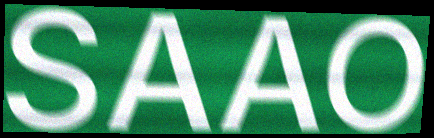
SAAO